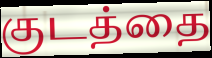
குடத்தை